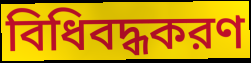
বিধিবদ্ধকরণ